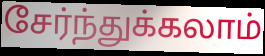
சேர்ந்துக்கலாம்